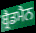
ਬ੍ਰੈਡਮੈਨ